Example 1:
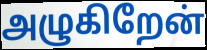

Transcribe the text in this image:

அழுகிறேன்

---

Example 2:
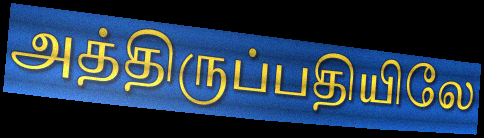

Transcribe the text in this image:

அத்திருப்பதியிலே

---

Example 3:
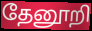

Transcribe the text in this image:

தேனூறி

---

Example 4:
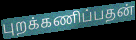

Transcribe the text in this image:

புறக்கணிப்பதன்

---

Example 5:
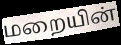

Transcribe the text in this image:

மறையின்